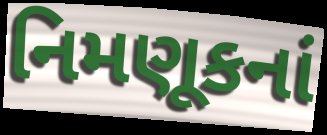
નિમણૂકનાં